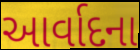
આર્વાદના